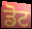
ਡੋਟ